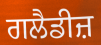
ਗਲੈਡੀਜ਼